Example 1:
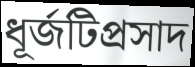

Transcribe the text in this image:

ধূর্জটিপ্রসাদ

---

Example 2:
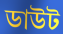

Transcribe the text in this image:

ডাউট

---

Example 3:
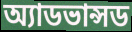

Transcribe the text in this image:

অ্যাডভান্সড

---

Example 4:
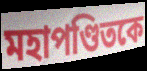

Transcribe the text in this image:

মহাপণ্ডিতকে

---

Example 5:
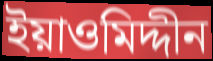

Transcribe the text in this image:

ইয়াওমিদ্দীন